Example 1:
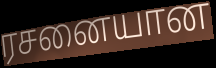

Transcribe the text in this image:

ரசனையான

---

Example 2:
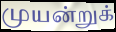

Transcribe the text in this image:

முயன்றுக்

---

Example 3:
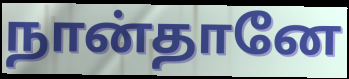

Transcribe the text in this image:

நான்தானே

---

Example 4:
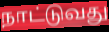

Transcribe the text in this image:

நாட்டுவது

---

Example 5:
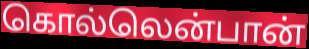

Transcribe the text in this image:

கொல்லென்பான்